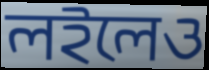
লইলেও